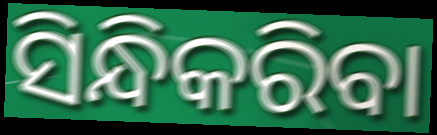
ସିନ୍ଧିକରିବା